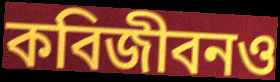
কবিজীবনও